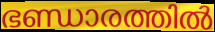
ഭണ്ഡാരത്തിൽ